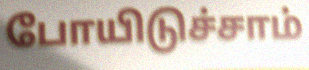
போயிடுச்சாம்